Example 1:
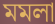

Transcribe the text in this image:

মমলা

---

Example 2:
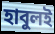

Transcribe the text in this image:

হাবুলই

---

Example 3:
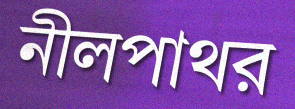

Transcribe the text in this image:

নীলপাথর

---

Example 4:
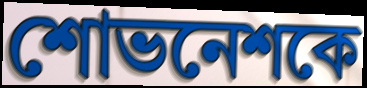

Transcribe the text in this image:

শোভনেশকে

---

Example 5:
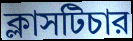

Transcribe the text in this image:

ক্লাসটিচার